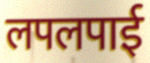
लपलपाई